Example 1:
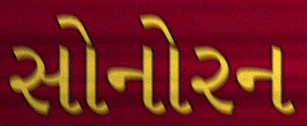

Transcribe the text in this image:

સોનોરન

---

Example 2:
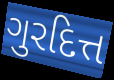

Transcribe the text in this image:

ગુરદિત્ત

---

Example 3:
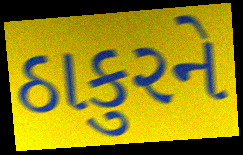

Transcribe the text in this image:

ઠાકુરને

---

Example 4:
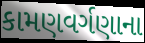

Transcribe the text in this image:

કામણવર્ગણાના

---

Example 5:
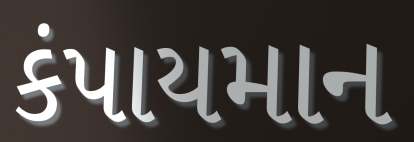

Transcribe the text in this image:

કંપાયમાન